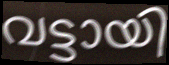
വട്ടായി